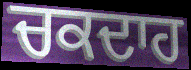
ਚਕਦਾਹ